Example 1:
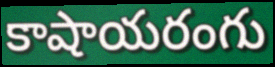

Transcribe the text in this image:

కాషాయరంగు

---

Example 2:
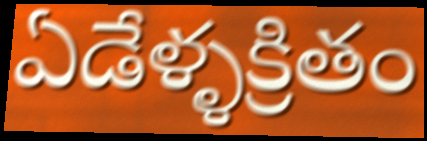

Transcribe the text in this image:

ఏడేళ్ళక్రితం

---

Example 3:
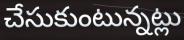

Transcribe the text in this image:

చేసుకుంటున్నట్లు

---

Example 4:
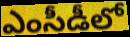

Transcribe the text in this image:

ఎంసీడీలో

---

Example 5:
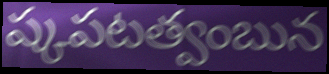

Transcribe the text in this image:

ష్కపటత్వంబున